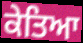
ਕੇਤਿਆ